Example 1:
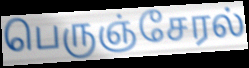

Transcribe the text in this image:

பெருஞ்சேரல்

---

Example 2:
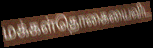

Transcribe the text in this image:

மக்கள்தொகையைவிட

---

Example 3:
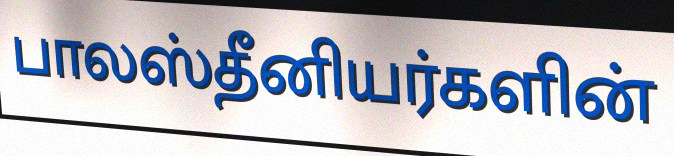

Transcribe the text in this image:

பாலஸ்தீனியர்களின்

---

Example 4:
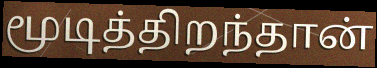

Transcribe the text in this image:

மூடித்திறந்தான்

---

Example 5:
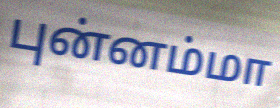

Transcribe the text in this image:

புன்னம்மா